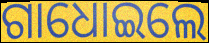
ଗାଧୋଇଲେ